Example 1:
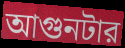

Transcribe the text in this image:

আগুনটার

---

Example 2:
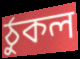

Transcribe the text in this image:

ঠুকল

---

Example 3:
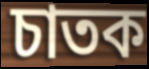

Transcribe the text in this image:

চাতক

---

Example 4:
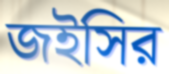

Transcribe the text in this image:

জইসির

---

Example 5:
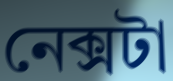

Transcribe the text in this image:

নেক্সটা